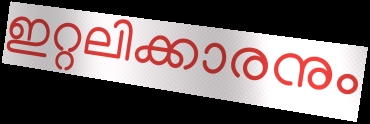
ഇറ്റലിക്കാരനും